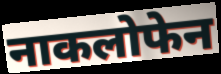
नाकलोफेन